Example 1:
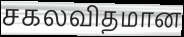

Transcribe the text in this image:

சகலவிதமான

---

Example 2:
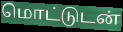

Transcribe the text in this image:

மொட்டுடன்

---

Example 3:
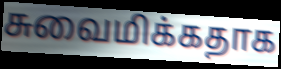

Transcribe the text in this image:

சுவைமிக்கதாக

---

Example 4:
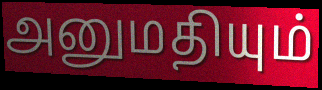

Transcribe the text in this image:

அனுமதியும்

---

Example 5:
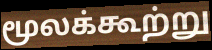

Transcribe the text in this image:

மூலக்கூற்று